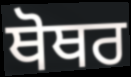
ਥੋਥਰ